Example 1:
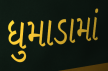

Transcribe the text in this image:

ધુમાડામાં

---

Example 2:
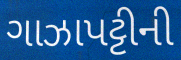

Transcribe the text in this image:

ગાઝાપટ્ટીની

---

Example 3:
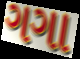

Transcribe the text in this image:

ગગા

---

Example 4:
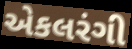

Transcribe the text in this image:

એકલરંગી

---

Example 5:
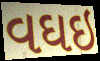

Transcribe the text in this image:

વઘઇ